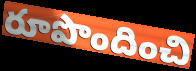
రూపొందించి